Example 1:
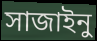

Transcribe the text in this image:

সাজাইনু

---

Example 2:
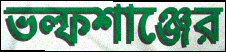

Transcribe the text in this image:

ভল্ফশাঞ্জের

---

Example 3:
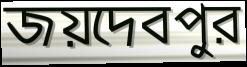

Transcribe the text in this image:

জয়দেবপুর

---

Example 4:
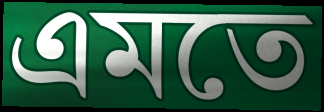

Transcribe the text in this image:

এমতে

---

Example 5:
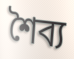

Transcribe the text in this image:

শৈব্য